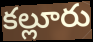
కల్లూరు